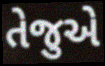
તેજુએ